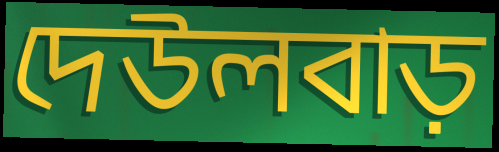
দেউলবাড়